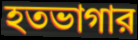
হতভাগার